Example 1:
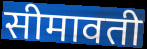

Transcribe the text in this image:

सीमावती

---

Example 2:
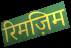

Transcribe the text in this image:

रिमज़िम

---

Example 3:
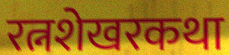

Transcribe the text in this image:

रत्नशेखरकथा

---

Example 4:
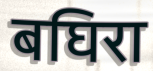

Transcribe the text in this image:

बघिरा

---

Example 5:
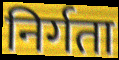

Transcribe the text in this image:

निर्गता